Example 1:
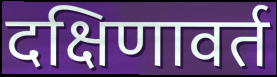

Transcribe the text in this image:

दक्षिणावर्त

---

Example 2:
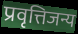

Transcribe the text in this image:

प्रवृत्तिजन्य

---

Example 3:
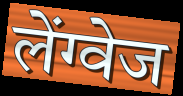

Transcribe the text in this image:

लेंग्वेज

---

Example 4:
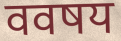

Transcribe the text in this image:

ववषय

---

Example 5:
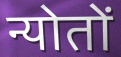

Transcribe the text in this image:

न्योतों